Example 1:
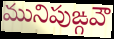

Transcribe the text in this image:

మునిపుఙ్గవౌ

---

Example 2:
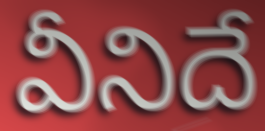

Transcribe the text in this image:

వీనిదే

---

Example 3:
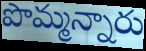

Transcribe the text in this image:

పొమ్మన్నారు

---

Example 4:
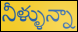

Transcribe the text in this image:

నీళ్ళున్నా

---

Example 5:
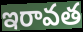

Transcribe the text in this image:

ఇరావత